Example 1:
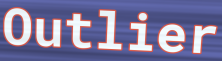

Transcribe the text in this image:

Outlier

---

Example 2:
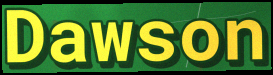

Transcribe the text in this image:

Dawson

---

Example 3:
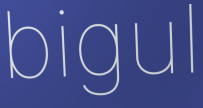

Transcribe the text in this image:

bigul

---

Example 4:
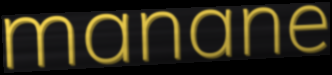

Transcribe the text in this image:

manane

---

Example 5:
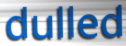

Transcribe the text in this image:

dulled